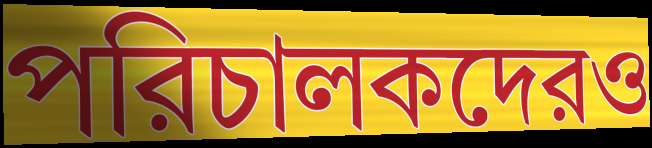
পরিচালকদেরও